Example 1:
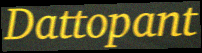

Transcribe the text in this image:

Dattopant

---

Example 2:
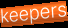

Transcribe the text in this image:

keepers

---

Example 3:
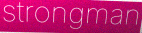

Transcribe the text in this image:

strongman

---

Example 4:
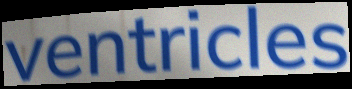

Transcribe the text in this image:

ventricles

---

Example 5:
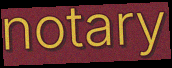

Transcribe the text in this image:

notary